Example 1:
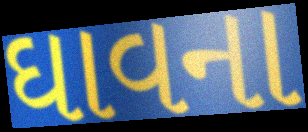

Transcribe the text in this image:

ઘાવના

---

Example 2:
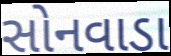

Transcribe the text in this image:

સોનવાડા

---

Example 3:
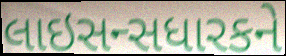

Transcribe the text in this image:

લાઇસન્સધારકને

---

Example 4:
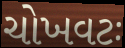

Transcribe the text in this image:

ચોખવટઃ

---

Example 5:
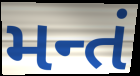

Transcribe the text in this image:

મન્તં